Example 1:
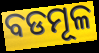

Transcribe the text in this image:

ବଡମୂଳ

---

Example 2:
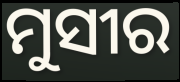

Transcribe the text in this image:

ମୁସୀର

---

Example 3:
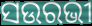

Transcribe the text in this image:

ସଉରଭୀ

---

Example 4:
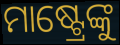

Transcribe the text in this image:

ମାଷ୍ଟ୍ରେଙ୍କୁ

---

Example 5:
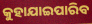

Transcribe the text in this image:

କୁହାଯାଇପାରିବ